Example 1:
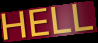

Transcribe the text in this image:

HELL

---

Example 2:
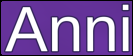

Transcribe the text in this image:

Anni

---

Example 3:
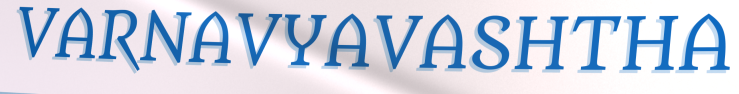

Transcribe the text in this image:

VARNAVYAVASHTHA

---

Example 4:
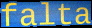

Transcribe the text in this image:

falta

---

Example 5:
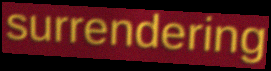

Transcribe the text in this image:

surrendering